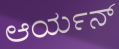
ಆರ್ಯನ್